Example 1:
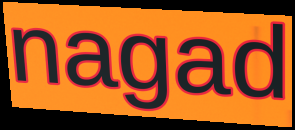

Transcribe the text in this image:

nagad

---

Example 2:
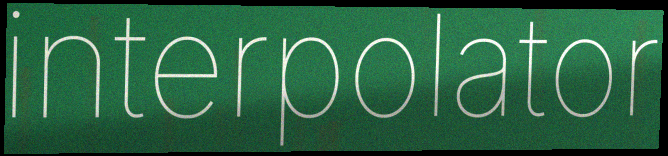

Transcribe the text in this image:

interpolator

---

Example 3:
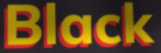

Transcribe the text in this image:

Black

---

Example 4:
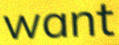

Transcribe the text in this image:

want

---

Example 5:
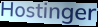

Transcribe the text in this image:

Hostinger